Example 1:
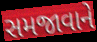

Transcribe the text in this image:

સમજાવાને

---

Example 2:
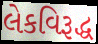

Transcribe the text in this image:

લેકવિરૂદ્ધ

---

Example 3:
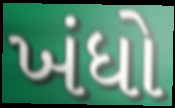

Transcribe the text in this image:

ખંધો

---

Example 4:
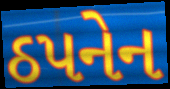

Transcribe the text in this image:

ઠપનેન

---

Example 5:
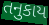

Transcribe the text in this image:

તનુકાય